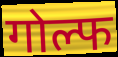
गोल्फ